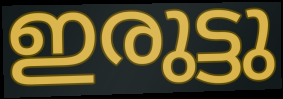
ഇരുട്ടു